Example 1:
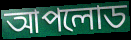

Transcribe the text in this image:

আপলোড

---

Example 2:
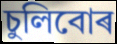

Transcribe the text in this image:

চুলিবোৰ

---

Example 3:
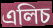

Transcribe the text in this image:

এলিচ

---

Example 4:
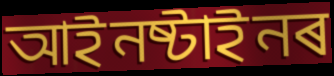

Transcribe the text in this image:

আইনষ্টাইনৰ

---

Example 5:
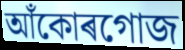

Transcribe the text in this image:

আঁকোৰগোজ